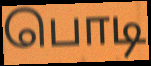
பொடி